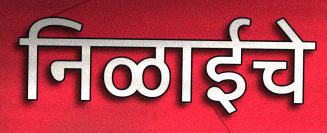
निळाईचे